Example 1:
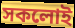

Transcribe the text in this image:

সকলোই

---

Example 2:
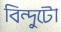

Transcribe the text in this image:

বিন্দুটো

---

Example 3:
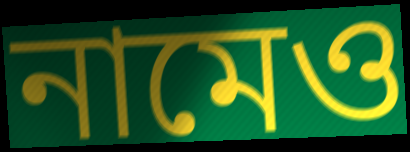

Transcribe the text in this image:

নামেও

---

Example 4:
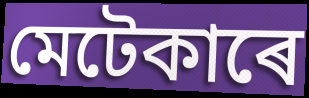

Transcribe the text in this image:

মেটেকাৰে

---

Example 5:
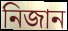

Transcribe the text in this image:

নিজান